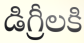
డిగ్రీలకి